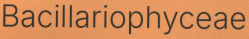
Bacillariophyceae